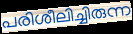
പരിശീലിച്ചിരുന്ന